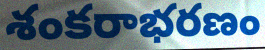
శంకరాభరణం